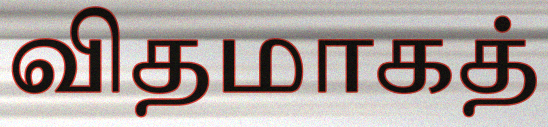
விதமாகத்